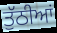
ਤੁੱਠੀਆਂ